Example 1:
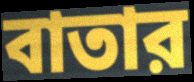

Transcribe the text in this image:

বাতার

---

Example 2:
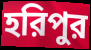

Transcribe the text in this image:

হরিপুর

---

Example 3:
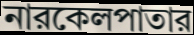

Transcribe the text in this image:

নারকেলপাতার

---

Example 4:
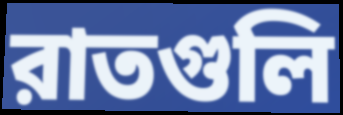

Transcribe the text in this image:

রাতগুলি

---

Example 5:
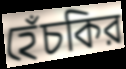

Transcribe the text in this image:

হেঁচকির